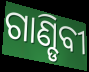
ଗାଣ୍ଡିବୀ